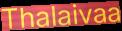
Thalaivaa